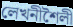
লেখনীশৈলী